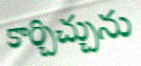
కార్చిచ్చును